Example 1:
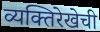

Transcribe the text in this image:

व्यक्तिरेखेची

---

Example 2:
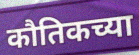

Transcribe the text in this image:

कौतिकच्या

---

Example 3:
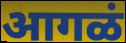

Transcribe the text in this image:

आगळं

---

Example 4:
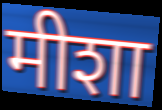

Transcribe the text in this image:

मीशा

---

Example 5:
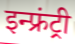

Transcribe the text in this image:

इन्फ्रंट्री